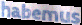
habemus